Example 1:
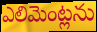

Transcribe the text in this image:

ఎలిమెంట్లను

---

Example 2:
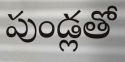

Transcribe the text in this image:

పుండ్లతో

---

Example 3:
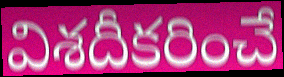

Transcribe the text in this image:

విశదీకరించే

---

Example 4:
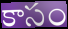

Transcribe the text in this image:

కాసం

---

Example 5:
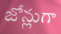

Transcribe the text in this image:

జోన్లుగా